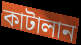
কাটালান